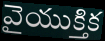
వైయుక్తిక